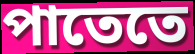
পাতেতে